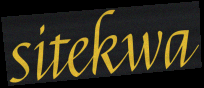
sitekwa